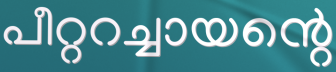
പീറ്ററച്ചായന്റെ